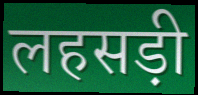
लहसड़ी